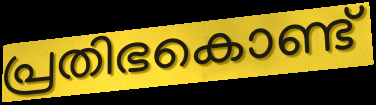
പ്രതിഭകൊണ്ട്